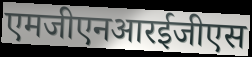
एमजीएनआरईजीएस